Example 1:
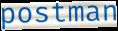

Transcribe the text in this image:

postman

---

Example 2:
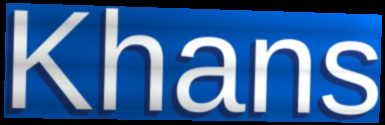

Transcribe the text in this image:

Khans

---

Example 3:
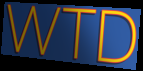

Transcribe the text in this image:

WTD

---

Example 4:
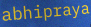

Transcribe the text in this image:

abhipraya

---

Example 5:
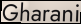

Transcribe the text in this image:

Gharani